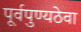
पूर्वपुण्यठेवा